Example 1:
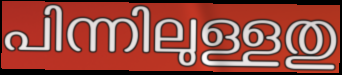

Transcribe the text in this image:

പിന്നിലുള്ളതു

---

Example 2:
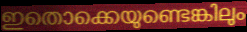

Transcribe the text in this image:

ഇതൊക്കെയുണ്ടെങ്കിലും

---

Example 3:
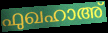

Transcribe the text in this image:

ഫുഖഹാഅ്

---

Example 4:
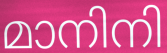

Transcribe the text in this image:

മാനിനി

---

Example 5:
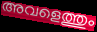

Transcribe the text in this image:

അവളെത്തും